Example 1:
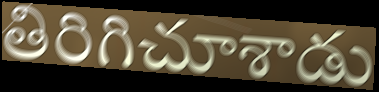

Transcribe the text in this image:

తిరిగిచూశాడు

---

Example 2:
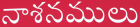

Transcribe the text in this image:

నాశనములు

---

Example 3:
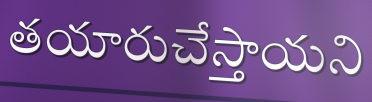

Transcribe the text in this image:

తయారుచేస్తాయని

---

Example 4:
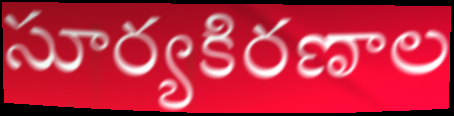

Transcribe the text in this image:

సూర్యకిరణాల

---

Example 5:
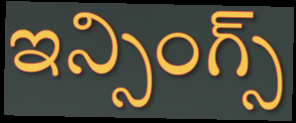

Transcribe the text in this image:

ఇన్సింగ్స్